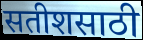
सतीशसाठी